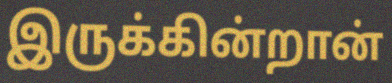
இருக்கின்றான்